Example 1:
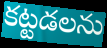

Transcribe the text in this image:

కట్టడలను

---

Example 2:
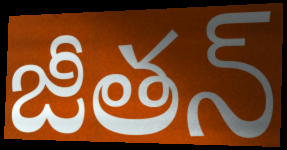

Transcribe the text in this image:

జీతన్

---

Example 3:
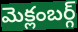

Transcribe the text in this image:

మెక్లంబర్గ్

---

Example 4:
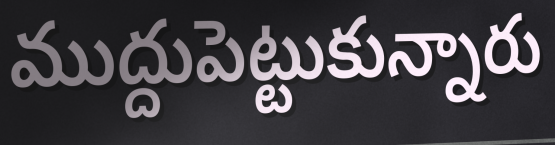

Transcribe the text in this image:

ముద్దుపెట్టుకున్నారు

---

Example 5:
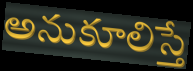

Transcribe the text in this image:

అనుకూలిస్తే